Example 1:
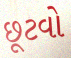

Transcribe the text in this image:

છૂટવો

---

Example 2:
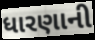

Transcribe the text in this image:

ધારણાની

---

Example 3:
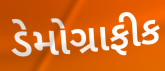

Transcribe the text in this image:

ડેમોગ્રાફીક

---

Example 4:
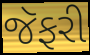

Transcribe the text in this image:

જૅફરી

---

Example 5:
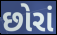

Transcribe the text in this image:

છોરાં